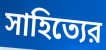
সাহিত্যের